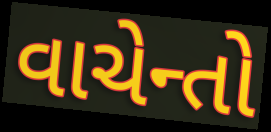
વાચેન્તો